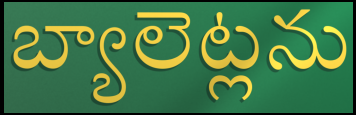
బ్యాలెట్లను